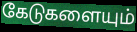
கேடுகளையும்